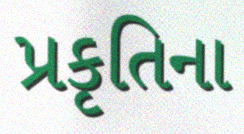
પ્રકૃતિના